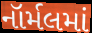
નૉર્મલમાં